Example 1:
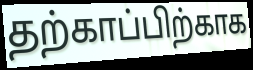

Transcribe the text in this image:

தற்காப்பிற்காக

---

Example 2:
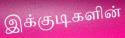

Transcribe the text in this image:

இக்குடிகளின்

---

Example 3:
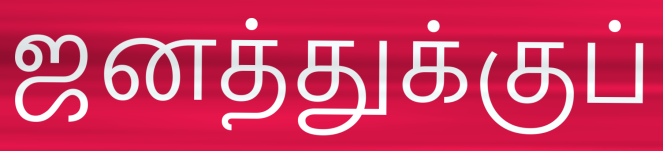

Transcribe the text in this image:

ஜனத்துக்குப்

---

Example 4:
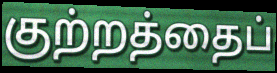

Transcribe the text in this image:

குற்றத்தைப்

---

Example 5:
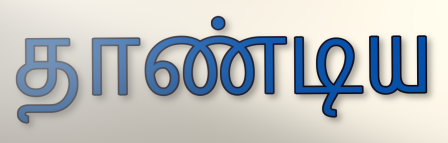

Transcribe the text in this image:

தாண்டிய